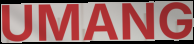
UMANG